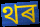
থৰ